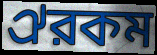
ঐরকম